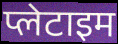
प्लेटाइम